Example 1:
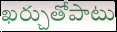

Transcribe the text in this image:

ఖర్చుతోపాటు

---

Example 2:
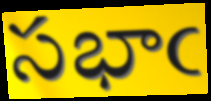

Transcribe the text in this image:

సభాఁ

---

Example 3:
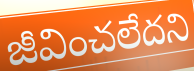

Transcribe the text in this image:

జీవించలేదని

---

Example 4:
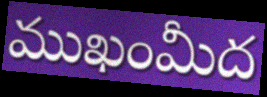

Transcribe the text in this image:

ముఖంమీద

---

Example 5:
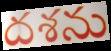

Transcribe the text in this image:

దశను